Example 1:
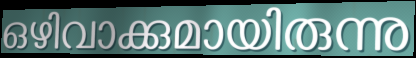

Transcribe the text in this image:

ഒഴിവാക്കുമായിരുന്നു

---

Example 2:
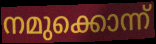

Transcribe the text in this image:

നമുക്കൊന്ന്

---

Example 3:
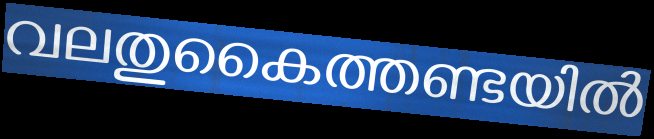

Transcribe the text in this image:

വലതുകൈത്തണ്ടയിൽ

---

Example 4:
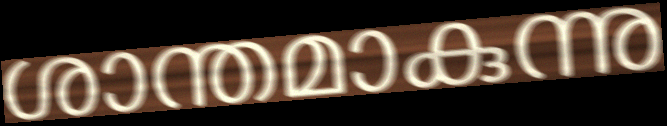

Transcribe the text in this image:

ശാന്തമാകുന്നു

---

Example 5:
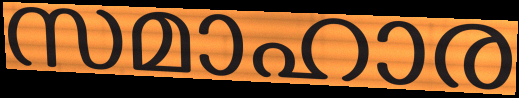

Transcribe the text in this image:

സമാഹാര